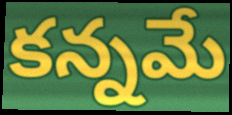
కన్నమే